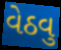
વેઠવુ